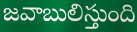
జవాబులిస్తుంది